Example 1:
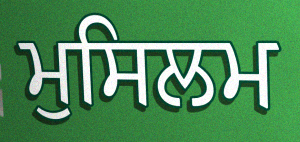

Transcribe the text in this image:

ਮੁਸਿਲਮ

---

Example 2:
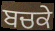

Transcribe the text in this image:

ਬਚਕੇ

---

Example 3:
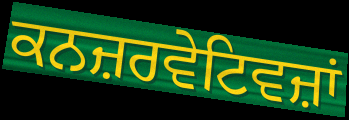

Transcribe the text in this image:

ਕਨਜ਼ਰਵੇਟਿਵਜ਼ਾਂ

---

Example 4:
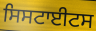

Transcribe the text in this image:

ਸਿਸਟਾਈਟਸ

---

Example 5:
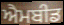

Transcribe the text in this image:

ਐਮਬੀਡ